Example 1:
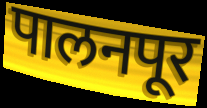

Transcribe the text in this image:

पालनपूर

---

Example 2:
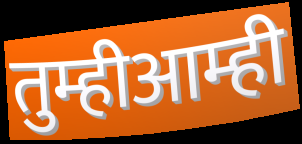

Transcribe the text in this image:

तुम्हीआम्ही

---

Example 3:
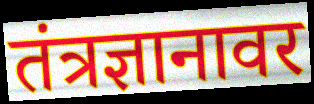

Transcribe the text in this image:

तंत्रज्ञानावर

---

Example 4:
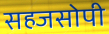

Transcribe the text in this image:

सहजसोपी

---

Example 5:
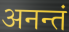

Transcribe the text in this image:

अनन्तं